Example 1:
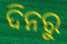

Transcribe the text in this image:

ଦିନରୁ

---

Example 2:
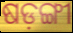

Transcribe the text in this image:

ଷଡ଼ଙ୍ଗୀ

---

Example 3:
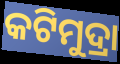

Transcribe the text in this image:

କଟିମୁଦ୍ରା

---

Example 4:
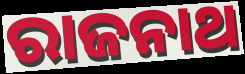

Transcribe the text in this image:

ରାଜନାଥ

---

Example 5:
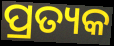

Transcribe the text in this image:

ପ୍ରତ୍ୟକ